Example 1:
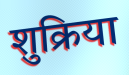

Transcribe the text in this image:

शुक्रिया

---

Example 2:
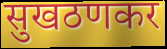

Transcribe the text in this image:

सुखठणकर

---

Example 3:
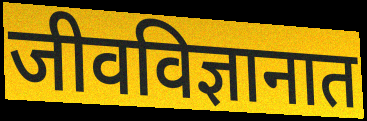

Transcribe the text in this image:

जीवविज्ञानात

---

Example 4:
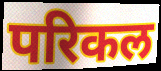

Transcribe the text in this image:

परिकल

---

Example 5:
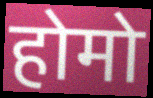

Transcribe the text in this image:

होमो